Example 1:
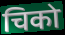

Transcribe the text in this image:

चिको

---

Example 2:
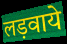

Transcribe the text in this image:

लड़वाये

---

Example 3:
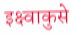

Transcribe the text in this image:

इक्ष्वाकुसे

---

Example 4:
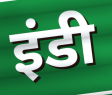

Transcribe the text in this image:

इंडी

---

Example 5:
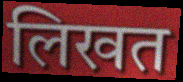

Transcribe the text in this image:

लिखत